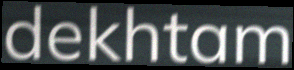
dekhtam